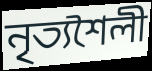
নৃত্যশৈলী